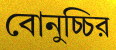
বোনুচ্চির